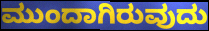
ಮುಂದಾಗಿರುವುದು